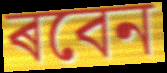
ৰবেন